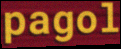
pagol